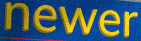
newer